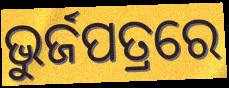
ଭୁର୍ଜପତ୍ରରେ